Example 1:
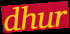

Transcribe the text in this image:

dhur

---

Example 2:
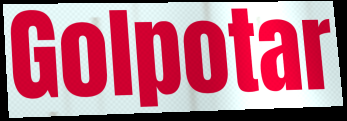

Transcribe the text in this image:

Golpotar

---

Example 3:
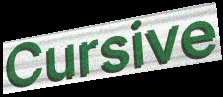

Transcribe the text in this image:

Cursive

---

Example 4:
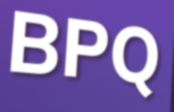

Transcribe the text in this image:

BPQ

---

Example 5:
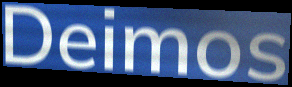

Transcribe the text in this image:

Deimos